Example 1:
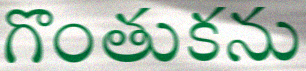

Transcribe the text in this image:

గొంతుకను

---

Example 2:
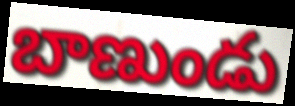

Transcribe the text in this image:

బాణుండు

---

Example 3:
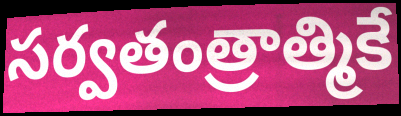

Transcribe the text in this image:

సర్వతంత్రాత్మికే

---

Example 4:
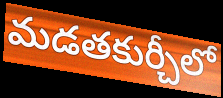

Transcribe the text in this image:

మడతకుర్చీలో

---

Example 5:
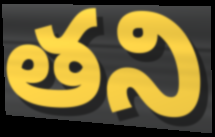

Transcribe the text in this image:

తని